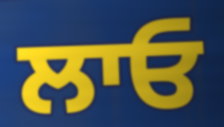
ਲਾਓ